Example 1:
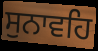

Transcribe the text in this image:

ਸੁਨਾਵਹਿ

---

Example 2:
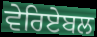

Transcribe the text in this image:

ਵੇਰਿਏਬਲ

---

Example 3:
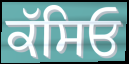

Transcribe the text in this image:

ਕੱਸਿਓ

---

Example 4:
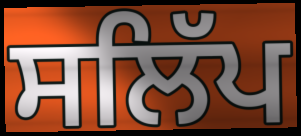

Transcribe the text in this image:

ਸਲਿੱਪ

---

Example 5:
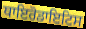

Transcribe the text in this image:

ਥਾਇਰੋਡਾਇਟਿਸ